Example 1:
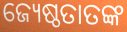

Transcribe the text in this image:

ଜ୍ୟେଷ୍ଠତାତଙ୍କ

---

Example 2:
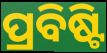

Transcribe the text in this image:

ପ୍ରବିଷ୍ଟି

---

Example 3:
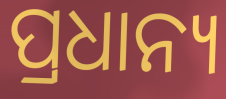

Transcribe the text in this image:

ପ୍ରଧାନ୍ୟ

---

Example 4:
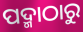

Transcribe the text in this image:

ପଦ୍ମାଠାରୁ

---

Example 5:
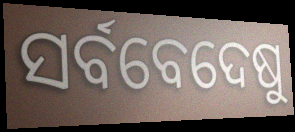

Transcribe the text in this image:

ସର୍ବବେଦେଷୁ